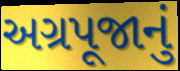
અગ્રપૂજાનું